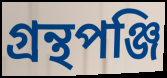
গ্রন্থপঞ্জি